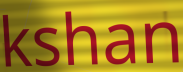
kshan